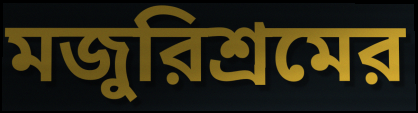
মজুরিশ্রমের